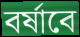
বর্ষাবে